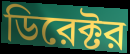
ডিরেক্টর